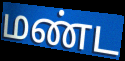
மண்ட